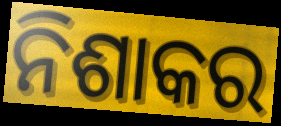
ନିଶାକର